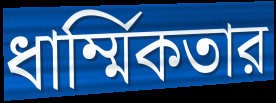
ধার্ম্মিকতার